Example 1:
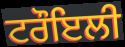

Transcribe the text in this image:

ਟਰੌਇਲੀ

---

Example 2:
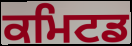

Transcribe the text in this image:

ਕਮਿਟਡ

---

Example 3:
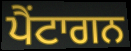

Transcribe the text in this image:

ਪੈਂਟਾਗਨ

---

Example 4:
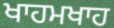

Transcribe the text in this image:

ਖਾਹਮਖਾਹ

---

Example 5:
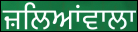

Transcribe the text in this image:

ਜ਼ਲਿਆਂਵਾਲਾ